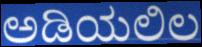
ಅಡಿಯಲಿಲ